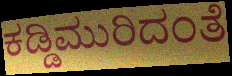
ಕಡ್ಡಿಮುರಿದಂತೆ